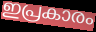
ഇപ്രകാരം